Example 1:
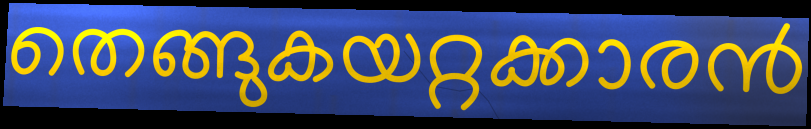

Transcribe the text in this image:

തെങ്ങുകയറ്റക്കാരൻ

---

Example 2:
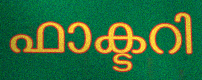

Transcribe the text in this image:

ഫാക്ടറി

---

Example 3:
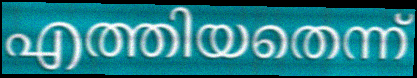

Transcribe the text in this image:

എത്തിയതെന്ന്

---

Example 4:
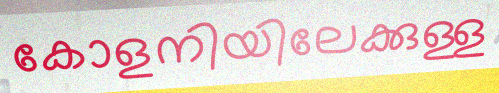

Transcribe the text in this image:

കോളനിയിലേക്കുള്ള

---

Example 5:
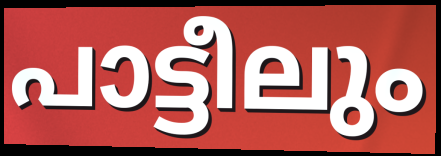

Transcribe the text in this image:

പാട്ടീലും